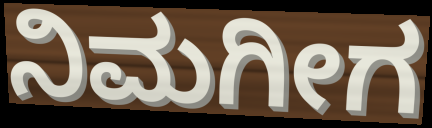
ನಿಮಗೀಗ